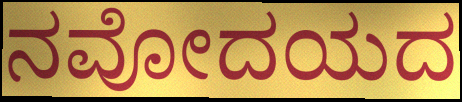
ನವೋದಯದ